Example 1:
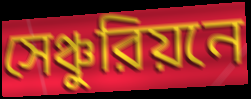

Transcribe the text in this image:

সেঞ্চুরিয়নে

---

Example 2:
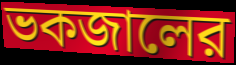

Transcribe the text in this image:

ভকজালের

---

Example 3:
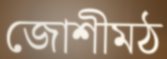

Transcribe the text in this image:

জোশীমঠ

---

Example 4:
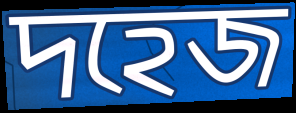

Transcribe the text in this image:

দহেজ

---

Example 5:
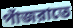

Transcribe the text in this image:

পাঁজরাতে